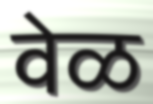
वेळ